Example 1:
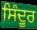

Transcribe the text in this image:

ਸਿੰਦੂਰ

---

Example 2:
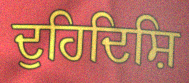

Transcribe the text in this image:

ਦੁਹਿਦਿਸ਼ਿ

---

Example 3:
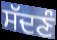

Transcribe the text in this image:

ਸੱਦਣੰ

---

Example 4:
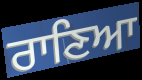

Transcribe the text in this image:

ਰਾਣਿਆ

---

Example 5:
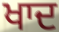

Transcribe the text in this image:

ਖਾਦ